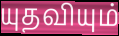
யுதவியும்